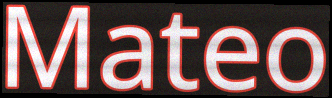
Mateo